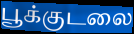
பூக்குடலை